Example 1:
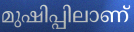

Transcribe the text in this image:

മുഷിപ്പിലാണ്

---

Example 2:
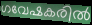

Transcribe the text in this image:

ഗവേഷകരിൽ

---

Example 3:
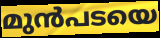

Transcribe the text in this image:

മുൻപടയെ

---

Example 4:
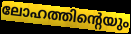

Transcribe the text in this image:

ലോഹത്തിന്റെയും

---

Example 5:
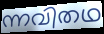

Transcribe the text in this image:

ന്നവിതഥ